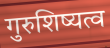
गुरुशिष्यत्व